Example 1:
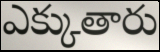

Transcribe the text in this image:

ఎక్కుతారు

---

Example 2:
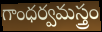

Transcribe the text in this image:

గాంధర్వమస్త్రం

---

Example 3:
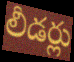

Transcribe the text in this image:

లీడర్లు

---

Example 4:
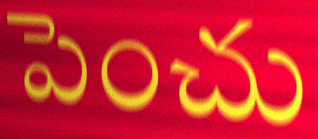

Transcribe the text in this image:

పెంచు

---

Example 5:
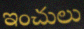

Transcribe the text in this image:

ఇంచులు